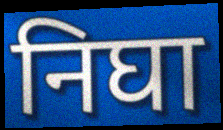
निघा